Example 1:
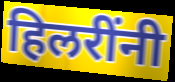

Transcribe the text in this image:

हिलरींनी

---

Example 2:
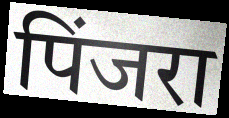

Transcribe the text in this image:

पिंजरा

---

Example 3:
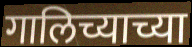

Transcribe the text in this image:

गालिच्याच्या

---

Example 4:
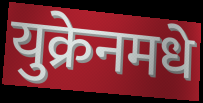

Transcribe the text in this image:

युक्रेनमधे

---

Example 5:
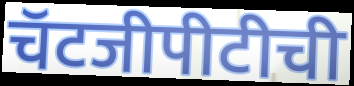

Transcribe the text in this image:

चॅटजीपीटीची